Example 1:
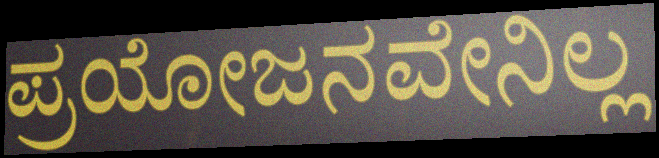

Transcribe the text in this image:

ಪ್ರಯೋಜನವೇನಿಲ್ಲ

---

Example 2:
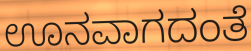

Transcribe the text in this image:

ಊನವಾಗದಂತೆ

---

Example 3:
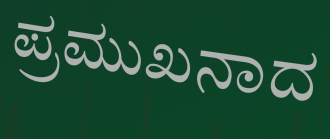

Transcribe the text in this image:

ಪ್ರಮುಖನಾದ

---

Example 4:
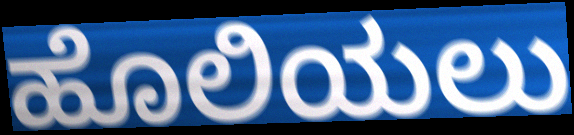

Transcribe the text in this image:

ಹೊಲಿಯಲು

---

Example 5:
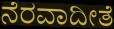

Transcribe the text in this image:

ನೆರವಾದೀತೆ